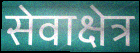
सेवाक्षेत्र